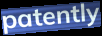
patently